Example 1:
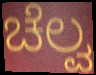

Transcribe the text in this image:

ಚೆಲ್ವ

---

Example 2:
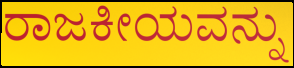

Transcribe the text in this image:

ರಾಜಕೀಯವನ್ನು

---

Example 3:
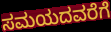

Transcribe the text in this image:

ಸಮಯದವರೆಗೆ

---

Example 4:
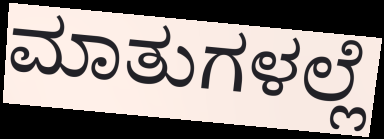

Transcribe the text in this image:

ಮಾತುಗಳಲ್ಲೆ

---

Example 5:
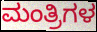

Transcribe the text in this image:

ಮಂತ್ರಿಗಳ